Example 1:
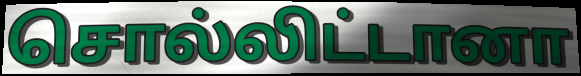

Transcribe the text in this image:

சொல்லிட்டானா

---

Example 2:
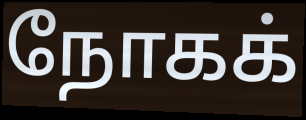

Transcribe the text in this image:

நோகக்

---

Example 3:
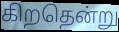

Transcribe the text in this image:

கிறதென்று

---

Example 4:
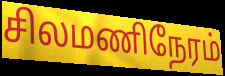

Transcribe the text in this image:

சிலமணிநேரம்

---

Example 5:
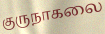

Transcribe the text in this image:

குருநாகலை